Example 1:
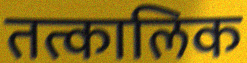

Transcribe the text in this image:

तत्कालिक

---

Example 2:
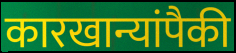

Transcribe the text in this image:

कारखान्यांपैकी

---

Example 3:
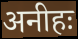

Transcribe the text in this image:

अनीहः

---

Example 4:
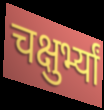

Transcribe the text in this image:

चक्षुर्भ्यां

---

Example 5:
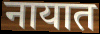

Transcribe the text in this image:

नायात